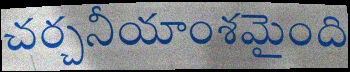
చర్చనీయాంశమైంది